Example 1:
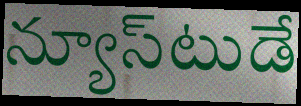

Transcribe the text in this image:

న్యూస్‌టుడే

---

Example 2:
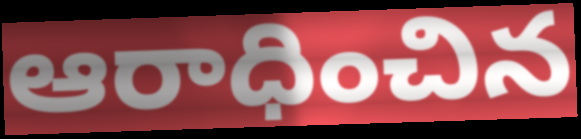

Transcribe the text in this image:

ఆరాధించిన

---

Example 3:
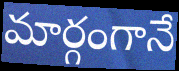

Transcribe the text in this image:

మార్గంగానే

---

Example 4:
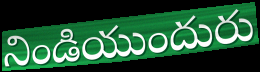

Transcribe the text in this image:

నిండియుందురు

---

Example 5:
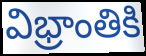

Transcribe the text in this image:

విభ్రాంతికి